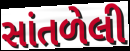
સાંતળેલી